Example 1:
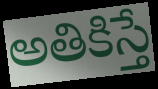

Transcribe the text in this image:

అతికిస్తే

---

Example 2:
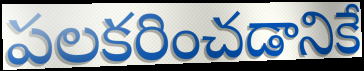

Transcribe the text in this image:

పలకరించడానికే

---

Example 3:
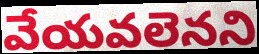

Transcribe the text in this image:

వేయవలెనని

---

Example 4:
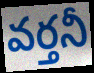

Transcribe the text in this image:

వర్తనీ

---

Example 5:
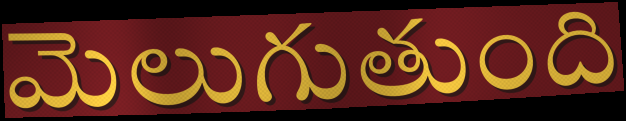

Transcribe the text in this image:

మెలుగుతుంది